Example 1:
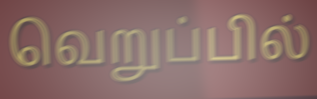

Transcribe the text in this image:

வெறுப்பில்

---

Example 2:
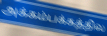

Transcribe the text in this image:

அக்கம்பக்கத்தில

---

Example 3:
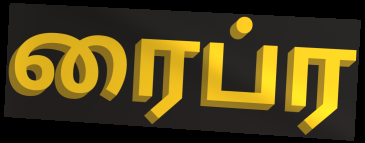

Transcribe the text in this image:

ரைப்ர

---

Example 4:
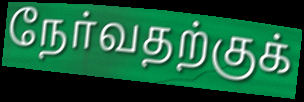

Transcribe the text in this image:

நேர்வதற்குக்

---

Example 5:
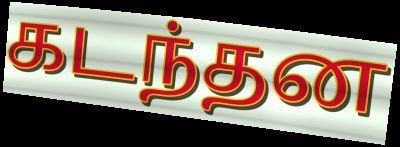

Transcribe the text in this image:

கடந்தன